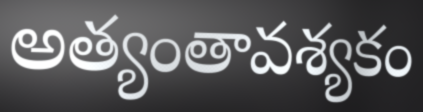
అత్యంతావశ్యకం